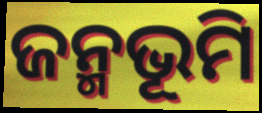
ଜନ୍ମଭୂମି